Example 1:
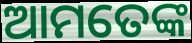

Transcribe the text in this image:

ଆମତେଙ୍କ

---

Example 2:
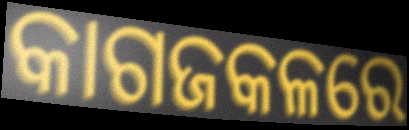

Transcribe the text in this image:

କାଗଜକଳରେ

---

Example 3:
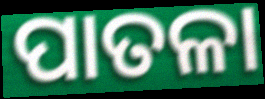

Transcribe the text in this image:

ପାତଳା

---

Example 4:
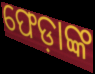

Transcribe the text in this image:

ଫେଡ଼ାଙ୍କ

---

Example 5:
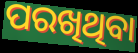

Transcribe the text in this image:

ପରଖିଥିବା